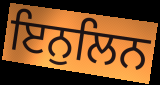
ਇਨੁਲਿਨ